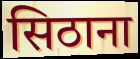
सिठाना